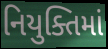
નિયુક્તિમાં